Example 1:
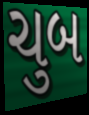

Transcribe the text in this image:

ચુબ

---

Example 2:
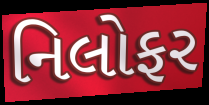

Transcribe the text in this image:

નિલોફર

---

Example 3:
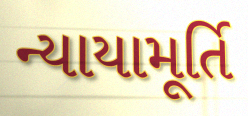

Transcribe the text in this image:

ન્યાયામૂર્તિ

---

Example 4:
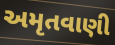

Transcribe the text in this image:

અમૃતવાણી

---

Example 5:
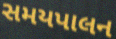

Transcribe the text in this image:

સમયપાલન